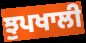
ਝੁਪਖਾਲੀ